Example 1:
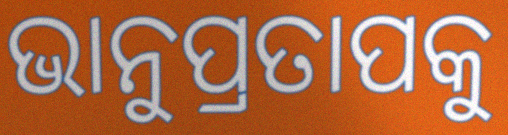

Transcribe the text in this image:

ଭାନୁପ୍ରତାପକୁ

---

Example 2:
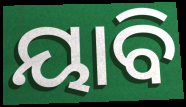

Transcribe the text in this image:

ୟାବି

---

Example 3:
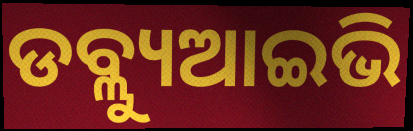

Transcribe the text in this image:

ଡବ୍ଲ୍ୟୁଆଇଭି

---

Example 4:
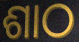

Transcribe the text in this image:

ଶାଠ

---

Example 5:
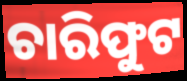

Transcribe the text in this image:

ଚାରିଫୁଟ